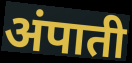
अंपाती